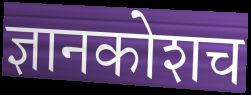
ज्ञानकोशच